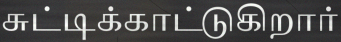
சுட்டிக்காட்டுகிறார்